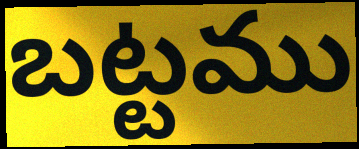
బట్టము